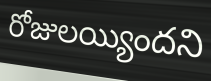
రోజులయ్యిందని